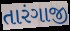
તારંગાજી